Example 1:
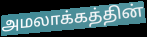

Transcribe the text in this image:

அமலாக்கத்தின்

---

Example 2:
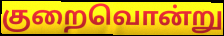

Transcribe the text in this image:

குறைவொன்று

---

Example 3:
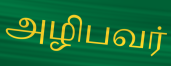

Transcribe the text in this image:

அழிபவர்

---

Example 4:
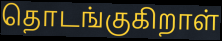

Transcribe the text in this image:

தொடங்குகிறாள்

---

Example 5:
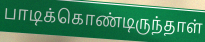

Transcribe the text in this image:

பாடிக்கொண்டிருந்தாள்